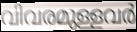
വിവരമുള്ളവർ